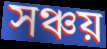
সঞ্চয়